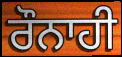
ਰੌਨਾਹੀ